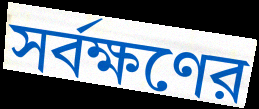
সর্বক্ষণের